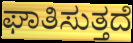
ಘಾತಿಸುತ್ತದೆ